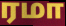
ரமா